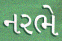
નરભે